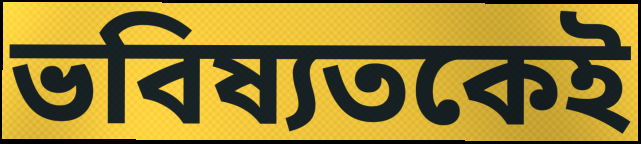
ভবিষ্যতকেই